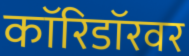
कॉरिडॉरवर